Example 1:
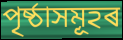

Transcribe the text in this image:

পৃষ্ঠাসমূহৰ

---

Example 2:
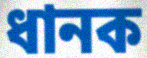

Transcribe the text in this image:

ধানক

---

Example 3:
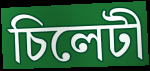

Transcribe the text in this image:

চিলেটী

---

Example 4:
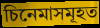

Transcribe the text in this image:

চিনেমাসমূহত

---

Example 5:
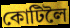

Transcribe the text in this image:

কোটিলৈ